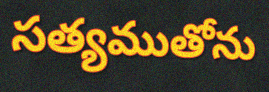
సత్యముతోను